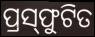
ପ୍ରସ୍‌ଫୁଟିତ